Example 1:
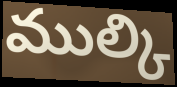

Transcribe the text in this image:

ముల్కి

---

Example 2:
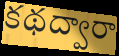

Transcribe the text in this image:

కథద్వారా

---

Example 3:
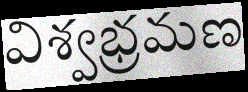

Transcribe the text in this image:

విశ్వభ్రమణ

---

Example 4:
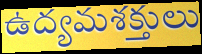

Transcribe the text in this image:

ఉద్యమశక్తులు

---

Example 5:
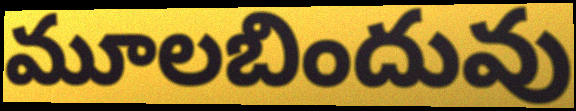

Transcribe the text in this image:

మూలబిందువు